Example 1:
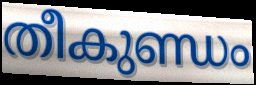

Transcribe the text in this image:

തീകുണ്ഡം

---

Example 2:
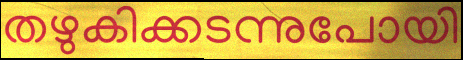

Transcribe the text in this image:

തഴുകിക്കടന്നുപോയി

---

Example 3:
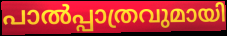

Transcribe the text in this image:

പാൽപ്പാത്രവുമായി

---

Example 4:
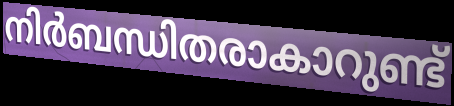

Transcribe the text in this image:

നിർബന്ധിതരാകാറുണ്ട്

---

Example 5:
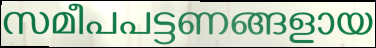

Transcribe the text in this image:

സമീപപട്ടണങ്ങളായ